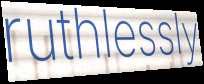
ruthlessly